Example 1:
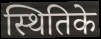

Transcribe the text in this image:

स्थितिके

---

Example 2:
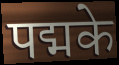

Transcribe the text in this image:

पद्मके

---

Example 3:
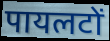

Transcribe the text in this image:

पायलटों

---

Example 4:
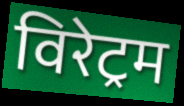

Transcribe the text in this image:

विरेट्रम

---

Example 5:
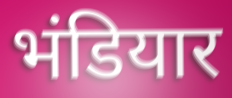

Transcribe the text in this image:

भंडियार